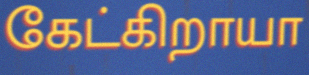
கேட்கிறாயா